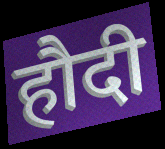
हौदी